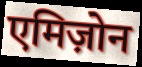
एमिज़ोन